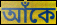
আঁকে